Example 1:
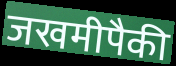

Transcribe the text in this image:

जखमीपैकी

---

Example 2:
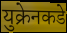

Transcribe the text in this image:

युक्रेनकडे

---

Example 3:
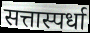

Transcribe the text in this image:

सत्तास्पर्धा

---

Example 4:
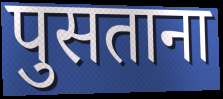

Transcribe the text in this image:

पुसताना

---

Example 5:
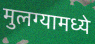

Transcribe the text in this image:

मुलग्यामध्ये